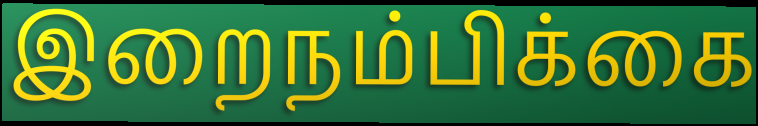
இறைநம்பிக்கை